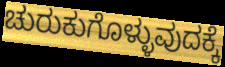
ಚುರುಕುಗೊಳ್ಳುವುದಕ್ಕೆ